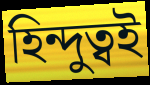
হিন্দুত্বই